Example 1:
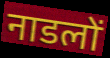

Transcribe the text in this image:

नाडलों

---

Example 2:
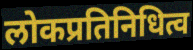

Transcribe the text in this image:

लोकप्रतिनिधित्व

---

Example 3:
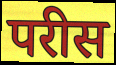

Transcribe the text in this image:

परीस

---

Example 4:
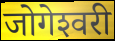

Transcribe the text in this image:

जोगेश्‍वरी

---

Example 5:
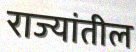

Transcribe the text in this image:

राज्यांतील